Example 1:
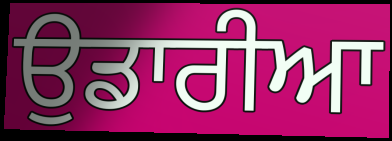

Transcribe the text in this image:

ਉਡਾਰੀਆ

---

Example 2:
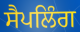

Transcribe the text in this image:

ਸੈਪਲਿੰਗ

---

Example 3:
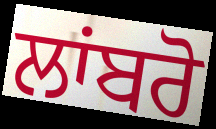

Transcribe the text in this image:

ਲਾਂਬਰੋ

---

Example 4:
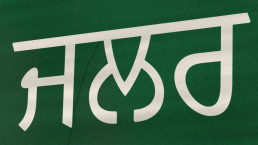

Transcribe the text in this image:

ਜਲਰ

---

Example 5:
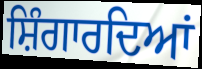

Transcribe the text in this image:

ਸ਼ਿੰਗਾਰਦਿਆਂ